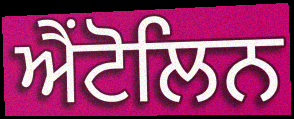
ਐਂਟੋਲਿਨ